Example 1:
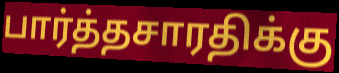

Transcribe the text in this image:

பார்த்தசாரதிக்கு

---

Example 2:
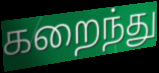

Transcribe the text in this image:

கறைந்து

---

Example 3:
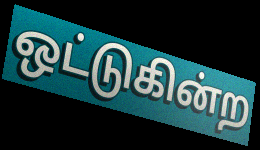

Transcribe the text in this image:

ஒட்டுகின்ற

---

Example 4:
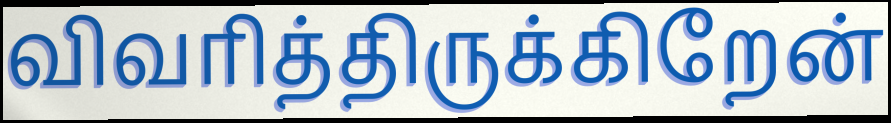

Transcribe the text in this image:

விவரித்திருக்கிறேன்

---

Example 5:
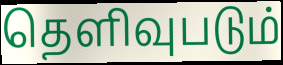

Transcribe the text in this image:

தெளிவுபடும்